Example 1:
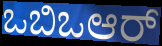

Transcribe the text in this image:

ಒಬಿಒಆರ್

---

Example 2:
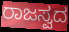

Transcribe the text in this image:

ರಾಜಸ್ವದ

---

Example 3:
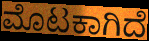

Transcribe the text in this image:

ಮೊಟಕಾಗಿದೆ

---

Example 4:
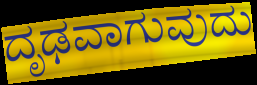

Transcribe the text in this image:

ದೃಢವಾಗುವುದು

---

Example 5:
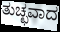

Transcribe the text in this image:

ತುಚ್ಛವಾದ